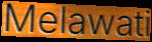
Melawati